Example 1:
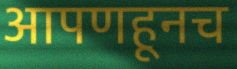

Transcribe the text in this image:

आपणहूनच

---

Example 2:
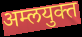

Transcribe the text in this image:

अम्लयुक्त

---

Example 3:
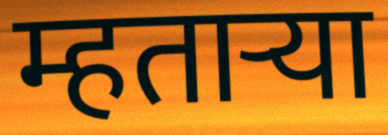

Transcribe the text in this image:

म्हताऱ्या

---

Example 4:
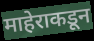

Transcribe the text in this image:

माहेराकडून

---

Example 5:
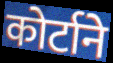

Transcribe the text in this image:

कोर्टाने